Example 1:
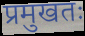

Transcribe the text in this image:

प्रमुखतः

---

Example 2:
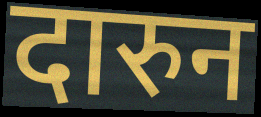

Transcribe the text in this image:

दारुन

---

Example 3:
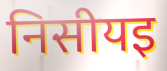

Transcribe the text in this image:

निसीयइ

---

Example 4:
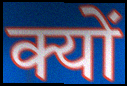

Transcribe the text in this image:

क्‍यों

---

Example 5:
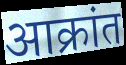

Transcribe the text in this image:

आक्रांत